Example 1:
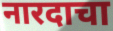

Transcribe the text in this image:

नारदाचा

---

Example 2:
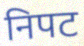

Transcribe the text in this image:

निपट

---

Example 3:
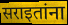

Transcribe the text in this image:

सराइतांना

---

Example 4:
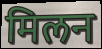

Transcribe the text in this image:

मिलन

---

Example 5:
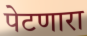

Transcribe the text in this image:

पेटणारा